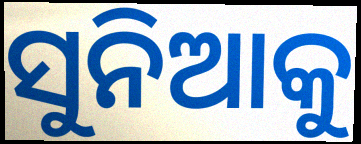
ସୁନିଆକୁ